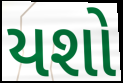
યશો